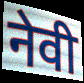
नेवी